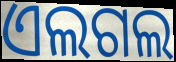
ଏଲଗଲ